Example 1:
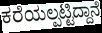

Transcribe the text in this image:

ಕರೆಯಲ್ಪಟ್ಟಿದ್ದಾನೆ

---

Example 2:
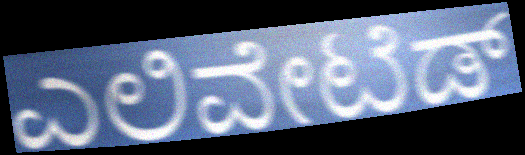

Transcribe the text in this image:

ಎಲಿವೇಟೆಡ್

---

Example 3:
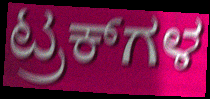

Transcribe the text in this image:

ಟ್ರಕ್‌ಗಳ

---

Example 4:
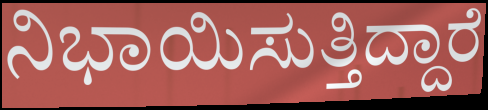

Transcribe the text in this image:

ನಿಭಾಯಿಸುತ್ತಿದ್ದಾರೆ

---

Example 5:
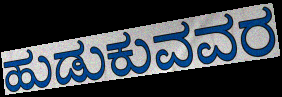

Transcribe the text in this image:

ಹುಡುಕುವವರ